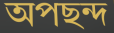
অপছন্দ